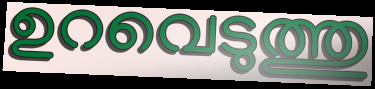
ഉറവെടുത്തു